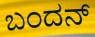
ಬಂದನ್